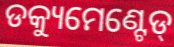
ଡକ୍ୟୁମେଣ୍ଟେଡ୍